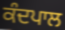
ਕੰਦਪਾਲ